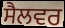
ਸੈਲਵਰ